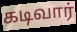
கடிவார்